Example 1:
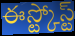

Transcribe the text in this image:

ఈస్ట్కోస్ట్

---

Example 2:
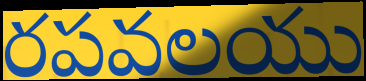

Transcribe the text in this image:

రపవలయు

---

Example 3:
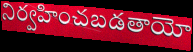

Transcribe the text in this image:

నిర్వహించబడతాయో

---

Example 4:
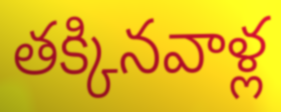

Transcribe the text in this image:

తక్కినవాళ్ల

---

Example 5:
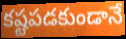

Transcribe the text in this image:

కష్టపడకుండానే